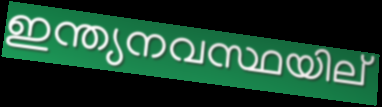
ഇന്ത്യനവസ്ഥയില്